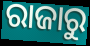
ରାଜାରୁ